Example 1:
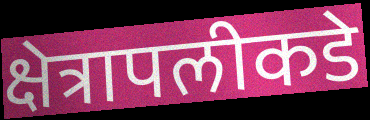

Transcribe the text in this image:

क्षेत्रापलीकडे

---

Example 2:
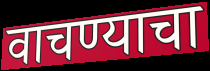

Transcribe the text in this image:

वाचण्याचा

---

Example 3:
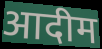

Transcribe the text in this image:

आदीम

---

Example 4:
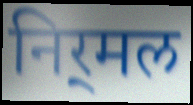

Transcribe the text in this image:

निर्मल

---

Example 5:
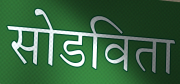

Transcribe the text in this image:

सोडविता